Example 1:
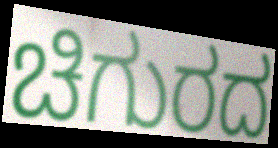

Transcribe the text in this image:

ಚಿಗುರದ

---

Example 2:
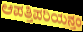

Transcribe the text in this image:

ಆಪತ್ತಿಪರಿಯನ್ತಂ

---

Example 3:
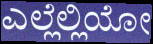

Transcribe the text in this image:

ಎಲ್ಲೆಲ್ಲಿಯೋ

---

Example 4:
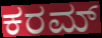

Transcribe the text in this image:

ಕರಮ್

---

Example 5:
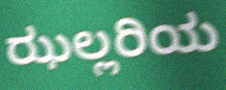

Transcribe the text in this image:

ಝಲ್ಲರಿಯ